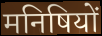
मनिषियों